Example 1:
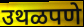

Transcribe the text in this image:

उथळपणे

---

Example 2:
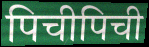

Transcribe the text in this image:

पिचीपिची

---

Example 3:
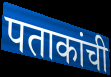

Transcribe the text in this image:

पताकांची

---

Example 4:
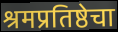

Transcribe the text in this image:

श्रमप्रतिष्ठेचा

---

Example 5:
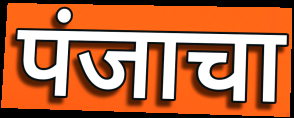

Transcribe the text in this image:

पंजाचा